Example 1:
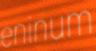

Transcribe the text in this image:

eninum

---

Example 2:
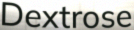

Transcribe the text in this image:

Dextrose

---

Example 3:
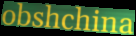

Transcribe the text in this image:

obshchina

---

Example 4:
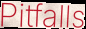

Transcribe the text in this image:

Pitfalls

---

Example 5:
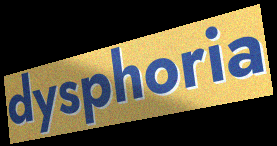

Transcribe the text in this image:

dysphoria